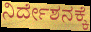
ನಿರ್ದೇಶನಕ್ಕೆ